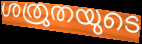
ശത്രുതയുടെ